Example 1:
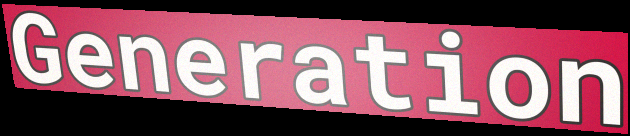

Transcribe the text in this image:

Generation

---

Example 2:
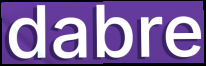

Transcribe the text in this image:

dabre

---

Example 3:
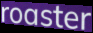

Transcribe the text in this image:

roaster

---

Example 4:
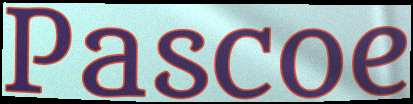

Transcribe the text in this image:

Pascoe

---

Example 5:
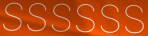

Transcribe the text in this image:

SSSSSS